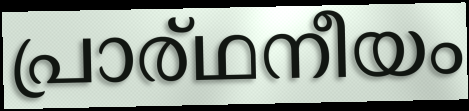
പ്രാര്ഥനീയം